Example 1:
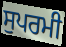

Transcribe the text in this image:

ਸੁਪਰਮੀ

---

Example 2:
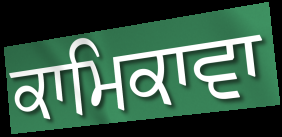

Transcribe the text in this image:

ਕਾਮਿਕਾਵਾ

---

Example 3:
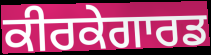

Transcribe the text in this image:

ਕੀਰਕੇਗਾਰਡ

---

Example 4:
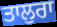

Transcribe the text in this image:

ਤਾਲੁਰਾ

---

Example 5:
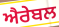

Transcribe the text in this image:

ਐਰੇਬਲ